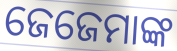
ଜେଜେମାଙ୍କ